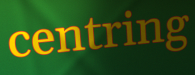
centring